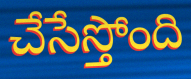
చేసేస్తోంది